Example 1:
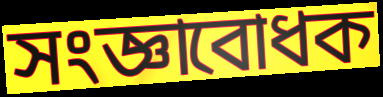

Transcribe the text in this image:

সংজ্ঞাবোধক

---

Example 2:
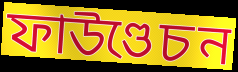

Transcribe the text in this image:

ফাউণ্ডেচন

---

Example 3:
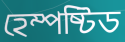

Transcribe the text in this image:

হেম্পষ্টিড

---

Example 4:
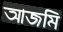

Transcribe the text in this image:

আজমি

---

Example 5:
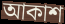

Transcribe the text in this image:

আকাশ